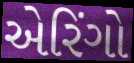
એરિંગો